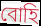
বোহি